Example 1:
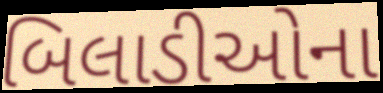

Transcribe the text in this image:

બિલાડીઓના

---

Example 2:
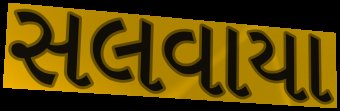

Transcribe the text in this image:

સલવાયા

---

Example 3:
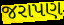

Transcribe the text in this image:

જરાપણ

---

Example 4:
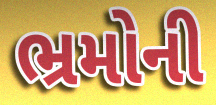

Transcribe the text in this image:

ભ્રમોની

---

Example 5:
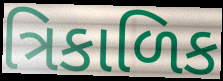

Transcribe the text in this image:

ત્રિકાળિક